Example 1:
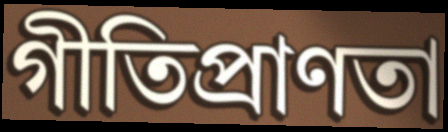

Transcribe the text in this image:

গীতিপ্রাণতা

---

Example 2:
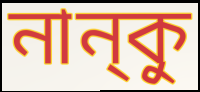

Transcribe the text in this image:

নান্‌কু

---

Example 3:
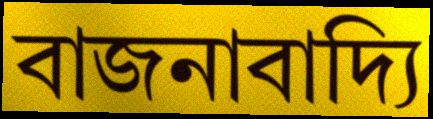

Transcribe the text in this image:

বাজনাবাদ্যি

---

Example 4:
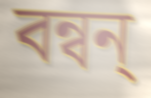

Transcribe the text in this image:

বন্বন্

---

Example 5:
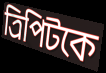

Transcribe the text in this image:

ত্রিপিটকে